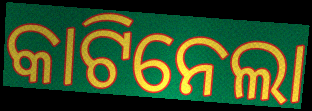
କାଟିନେଲା